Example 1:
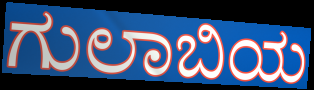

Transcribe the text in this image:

ಗುಲಾಬಿಯ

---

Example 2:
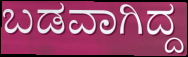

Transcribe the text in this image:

ಬಡವಾಗಿದ್ದ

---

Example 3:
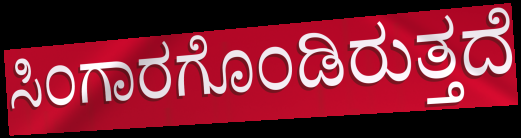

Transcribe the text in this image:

ಸಿಂಗಾರಗೊಂಡಿರುತ್ತದೆ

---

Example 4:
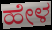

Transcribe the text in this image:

ಹೇಳ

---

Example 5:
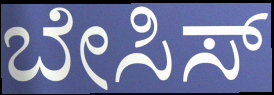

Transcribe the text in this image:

ಬೇಸಿಸ್